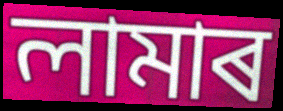
লামাৰ